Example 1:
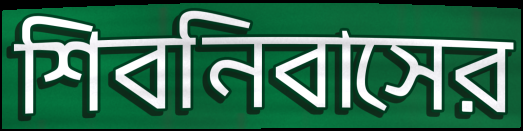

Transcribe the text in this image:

শিবনিবাসের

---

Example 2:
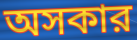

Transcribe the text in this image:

অসকার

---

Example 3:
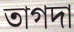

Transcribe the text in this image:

তাগদা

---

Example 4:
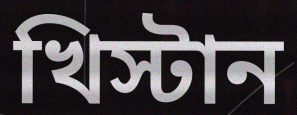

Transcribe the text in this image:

খিস্টান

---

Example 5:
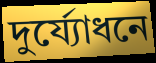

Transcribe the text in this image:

দুর্য্যোধনে